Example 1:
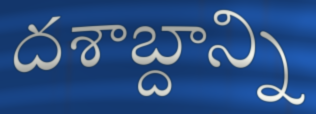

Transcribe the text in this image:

దశాబ్దాన్ని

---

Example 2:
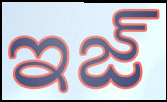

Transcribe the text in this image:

ఇజ్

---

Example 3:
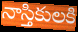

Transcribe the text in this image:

నాస్తికులకి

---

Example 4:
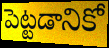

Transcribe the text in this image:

పెట్టడానికో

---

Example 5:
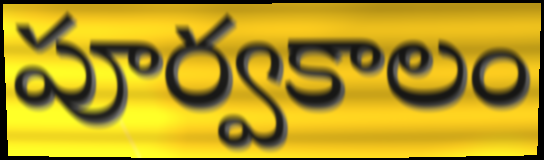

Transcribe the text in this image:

పూర్వకాలం